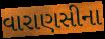
વારાણસીના